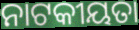
ନାଟକୀୟତା